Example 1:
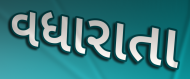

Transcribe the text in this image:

વધારાતા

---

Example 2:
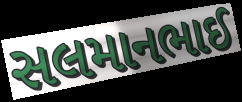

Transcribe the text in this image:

સલમાનભાઈ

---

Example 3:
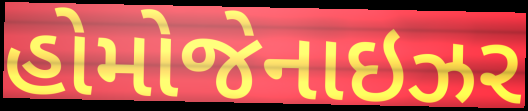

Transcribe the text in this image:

હોમોજેનાઇઝર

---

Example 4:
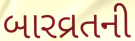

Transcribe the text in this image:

બારવ્રતની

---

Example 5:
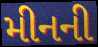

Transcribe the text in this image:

મીનની